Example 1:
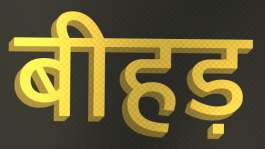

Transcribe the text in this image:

बीहड़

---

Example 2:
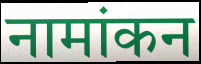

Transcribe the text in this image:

नामांकन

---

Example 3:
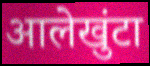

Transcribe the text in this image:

आलेखुंटा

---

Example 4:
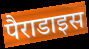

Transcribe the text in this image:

पैराडाइस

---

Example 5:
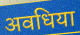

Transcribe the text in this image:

अवधिया